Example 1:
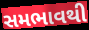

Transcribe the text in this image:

સમભાવથી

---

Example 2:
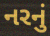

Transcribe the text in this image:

નરનું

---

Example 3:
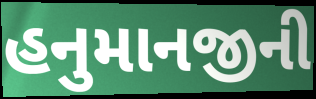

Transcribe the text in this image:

હનુમાનજીની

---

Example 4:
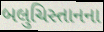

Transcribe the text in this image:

બલુચિસ્તાનના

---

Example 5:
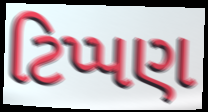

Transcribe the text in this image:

ટિપ્પણ